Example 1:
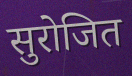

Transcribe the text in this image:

सुरोजित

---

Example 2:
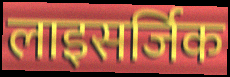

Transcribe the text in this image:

लाइसर्जिक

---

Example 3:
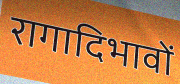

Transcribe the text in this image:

रागादिभावों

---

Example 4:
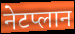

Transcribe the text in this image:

नेटप्लान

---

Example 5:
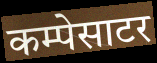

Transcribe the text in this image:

कम्पेसाटर